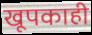
खूपकाही